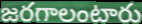
జరగాలంటారు